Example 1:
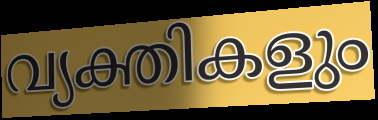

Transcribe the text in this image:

വ്യക്തികളും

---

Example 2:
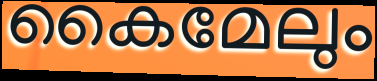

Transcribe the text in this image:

കൈമേലും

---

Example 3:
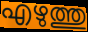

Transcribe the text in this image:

എഴുത്തു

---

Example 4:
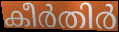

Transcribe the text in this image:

കീർതിർ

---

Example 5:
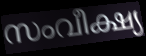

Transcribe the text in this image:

സംവീക്ഷ്യ